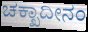
ಚಕ್ಖಾದೀನಂ